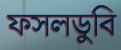
ফসলডুবি